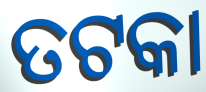
ତଟକା